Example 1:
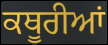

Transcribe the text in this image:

ਕਥੂਰੀਆਂ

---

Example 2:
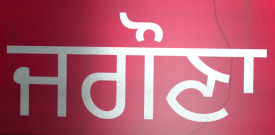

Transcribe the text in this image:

ਜਗੌਣਾ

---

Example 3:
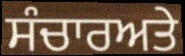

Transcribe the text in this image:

ਸੰਚਾਰਅਤੇ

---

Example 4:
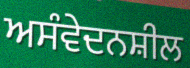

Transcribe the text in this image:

ਅਸੰਵੇਦਨਸ਼ੀਲ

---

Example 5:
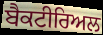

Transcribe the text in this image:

ਬੈਕਟੀਰਿਅਲ